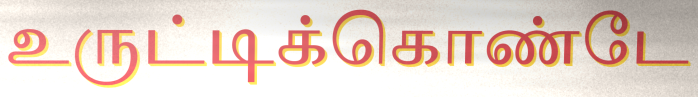
உருட்டிக்கொண்டே